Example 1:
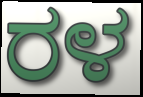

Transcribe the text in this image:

ರಳ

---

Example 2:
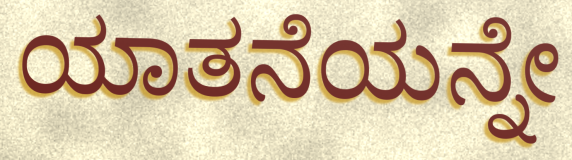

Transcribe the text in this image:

ಯಾತನೆಯನ್ನೇ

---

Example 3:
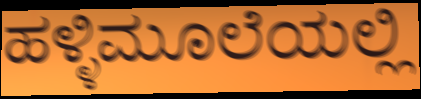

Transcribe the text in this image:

ಹಳ್ಳಿಮೂಲೆಯಲ್ಲಿ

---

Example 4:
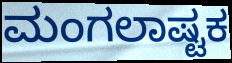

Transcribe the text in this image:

ಮಂಗಲಾಷ್ಟಕ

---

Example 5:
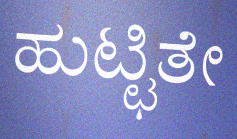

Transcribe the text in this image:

ಹುಟ್ಟಿತೇ